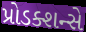
પ્રોડક્શન્સે